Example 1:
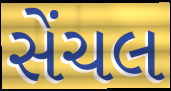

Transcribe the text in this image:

સેંચલ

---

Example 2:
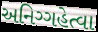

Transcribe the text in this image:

અનિગ્ગહેત્વા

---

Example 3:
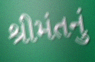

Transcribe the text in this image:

શ્રીમંતનું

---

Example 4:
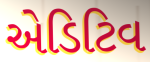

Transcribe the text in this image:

એડિટિવ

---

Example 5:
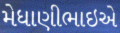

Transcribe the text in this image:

મેધાણીભાઇએ